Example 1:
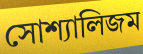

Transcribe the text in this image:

সোশ্যালিজম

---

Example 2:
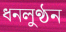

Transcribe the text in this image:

ধনলুণ্ঠন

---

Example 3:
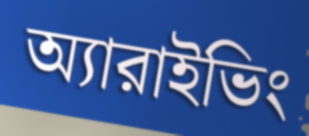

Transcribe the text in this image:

অ্যারাইভিং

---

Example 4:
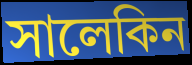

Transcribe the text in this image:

সালেকিন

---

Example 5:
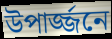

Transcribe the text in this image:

উপার্জ্জনে